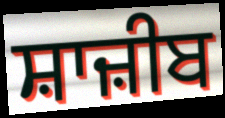
ਸ਼ਾਜ਼ੀਬ